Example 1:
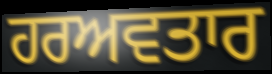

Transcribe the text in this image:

ਹਰਅਵਤਾਰ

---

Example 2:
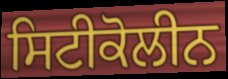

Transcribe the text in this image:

ਸਿਟੀਕੋਲੀਨ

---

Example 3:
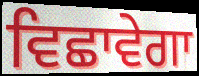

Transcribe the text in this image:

ਵਿਛਾਵੇਗਾ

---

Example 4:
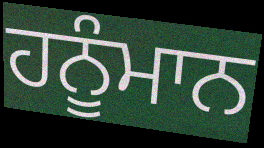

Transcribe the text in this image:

ਹਨੂੰਮਾਨ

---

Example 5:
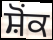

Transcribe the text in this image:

ਸ਼ੋਂਕ